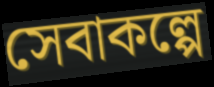
সেবাকল্পে